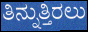
ತಿನ್ನುತ್ತಿರಲು